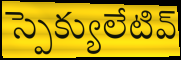
స్పెక్యులేటివ్